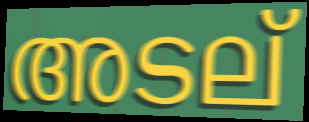
അടല്